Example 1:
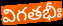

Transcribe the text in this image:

విగతభీః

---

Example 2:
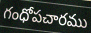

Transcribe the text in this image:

గంధోపచారము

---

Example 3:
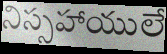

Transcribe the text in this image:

నిస్సహాయులే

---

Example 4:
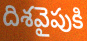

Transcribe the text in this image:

దిశవైపుకి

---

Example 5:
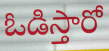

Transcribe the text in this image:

ఓడిస్తారో